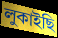
লুকাইছি